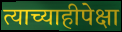
त्याच्याहीपेक्षा